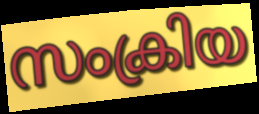
സംക്രിയ